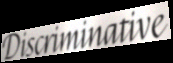
Discriminative